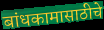
बांधकामासाठीचे